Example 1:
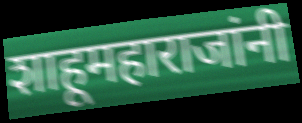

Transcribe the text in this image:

शाहूमहाराजांनी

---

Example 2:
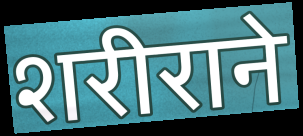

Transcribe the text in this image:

शरीराने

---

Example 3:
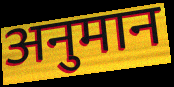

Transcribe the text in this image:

अनुमान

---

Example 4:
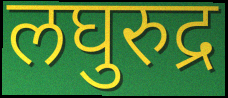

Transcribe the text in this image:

लघुरुद्र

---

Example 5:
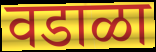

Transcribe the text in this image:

वडाळा